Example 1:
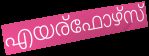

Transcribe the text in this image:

എയര്ഫോഴ്സ്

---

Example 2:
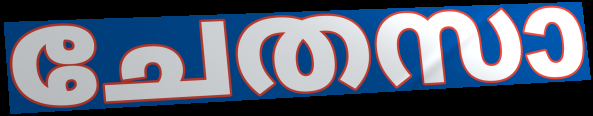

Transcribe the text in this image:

ചേതസാ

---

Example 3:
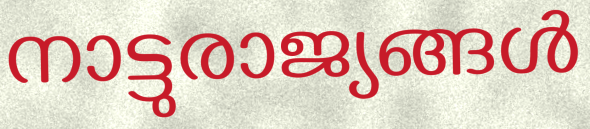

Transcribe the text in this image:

നാട്ടുരാജ്യങ്ങൾ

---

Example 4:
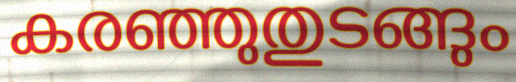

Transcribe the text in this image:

കരഞ്ഞുതുടങ്ങും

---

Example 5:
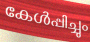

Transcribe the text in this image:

കേൾപ്പിച്ചും